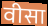
वीसा